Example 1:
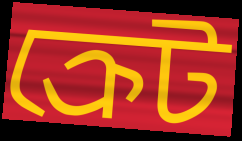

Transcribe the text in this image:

ক্রেট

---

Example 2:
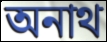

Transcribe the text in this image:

অনাথ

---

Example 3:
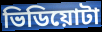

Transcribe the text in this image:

ভিডিয়োটা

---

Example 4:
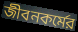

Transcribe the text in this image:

জীবনকর্মের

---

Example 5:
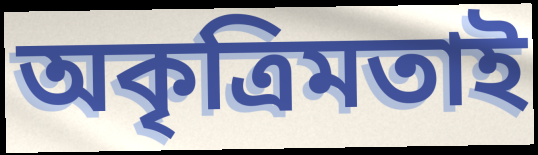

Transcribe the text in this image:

অকৃত্রিমতাই